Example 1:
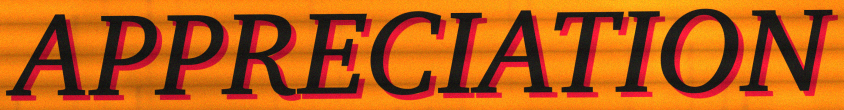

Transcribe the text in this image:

APPRECIATION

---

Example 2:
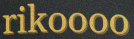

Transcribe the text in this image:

rikoooo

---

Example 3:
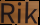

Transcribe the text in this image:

Rik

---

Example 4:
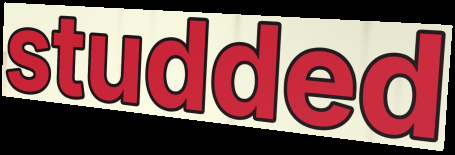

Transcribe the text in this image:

studded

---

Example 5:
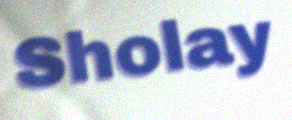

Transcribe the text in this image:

Sholay